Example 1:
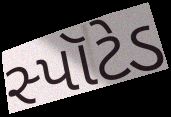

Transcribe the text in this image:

સ્પૉટેડ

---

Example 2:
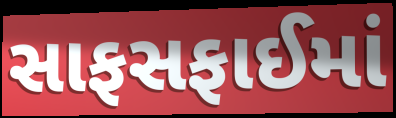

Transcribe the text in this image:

સાફસફાઈમાં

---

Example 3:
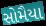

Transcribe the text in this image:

સોમૈયા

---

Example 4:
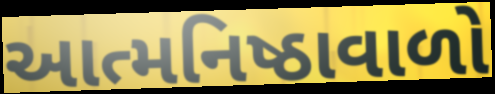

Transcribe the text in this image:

આત્મનિષ્ઠાવાળો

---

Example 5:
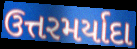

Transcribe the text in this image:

ઉત્તરમર્યાદા